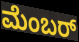
ಮೆಂಬರ್